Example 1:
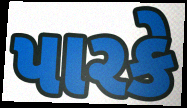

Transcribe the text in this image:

પારકે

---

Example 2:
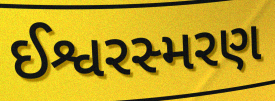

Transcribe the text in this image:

ઈશ્વરસ્મરણ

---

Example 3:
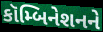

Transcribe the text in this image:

કૉમ્બિનેશનને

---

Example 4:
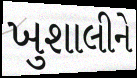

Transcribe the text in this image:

ખુશાલીને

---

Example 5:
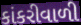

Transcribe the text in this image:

કાંકરીવાળી